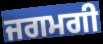
ਜਗਮਗੀ